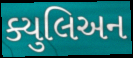
ક્યુલિઅન